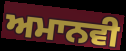
ਅਮਾਨਵੀ